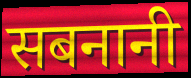
सबनानी